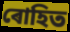
ৰোহিত